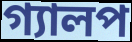
গ্যালপ